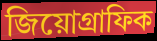
জিয়োগ্রাফিক